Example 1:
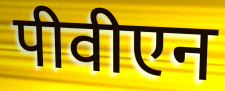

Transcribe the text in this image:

पीवीएन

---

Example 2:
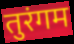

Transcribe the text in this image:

तुरंगम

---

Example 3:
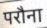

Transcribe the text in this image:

परौना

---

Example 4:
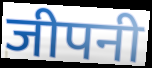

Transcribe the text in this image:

जीपनी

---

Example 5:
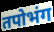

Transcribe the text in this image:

तपोभंग